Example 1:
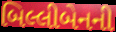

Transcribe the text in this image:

બિલ્લીબેનની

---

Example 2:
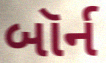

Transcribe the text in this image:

બૉર્ન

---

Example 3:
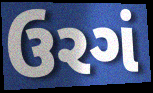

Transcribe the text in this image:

ઉરગં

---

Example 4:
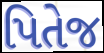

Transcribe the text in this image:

પિતેજ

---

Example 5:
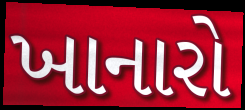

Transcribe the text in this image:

ખાનારો